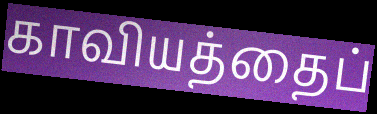
காவியத்தைப்